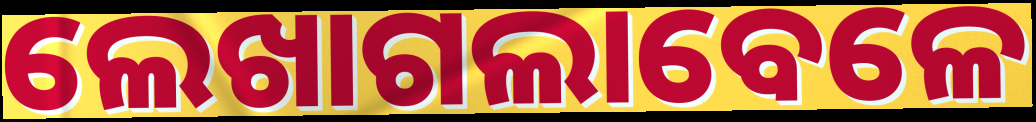
ଲେଖାଗଲାବେଳେ